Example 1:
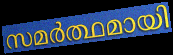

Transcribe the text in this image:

സമർത്ഥമായി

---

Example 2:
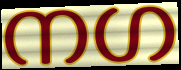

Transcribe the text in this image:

നഗ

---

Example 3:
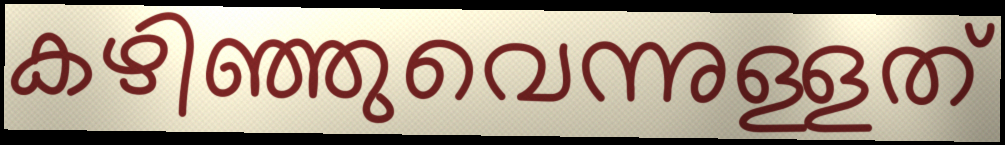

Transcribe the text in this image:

കഴിഞ്ഞുവെന്നുള്ളത്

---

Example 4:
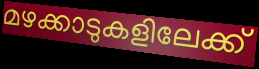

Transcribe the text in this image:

മഴക്കാടുകളിലേക്ക്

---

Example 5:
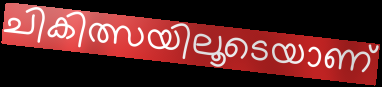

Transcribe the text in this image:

ചികിത്സയിലൂടെയാണ്